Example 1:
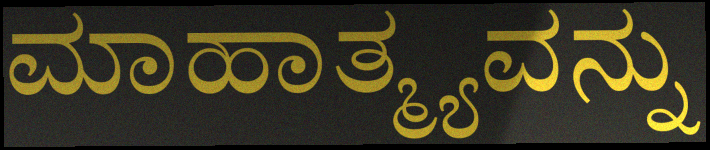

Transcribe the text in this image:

ಮಾಹಾತ್ಮ್ಯವನ್ನು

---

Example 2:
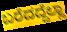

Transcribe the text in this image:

ಬರೆದದ್ದೆಲ್ಲಾ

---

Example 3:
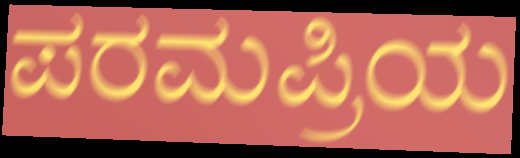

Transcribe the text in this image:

ಪರಮಪ್ರಿಯ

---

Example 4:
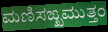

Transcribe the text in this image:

ಮಣಿಸಙ್ಖಮುತ್ತಂ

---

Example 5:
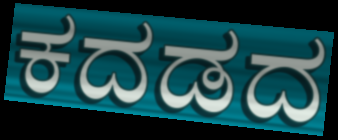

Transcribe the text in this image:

ಕದಡದ